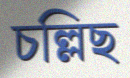
চল্লিছ